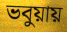
ভবুয়ায়